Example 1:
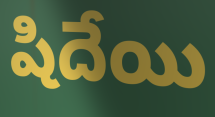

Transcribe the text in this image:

షిదేయి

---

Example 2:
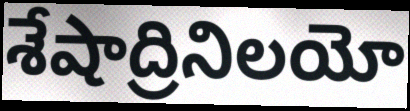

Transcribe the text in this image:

శేషాద్రినిలయో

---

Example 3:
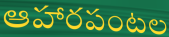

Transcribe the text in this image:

ఆహారపంటల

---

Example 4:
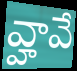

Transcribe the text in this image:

వ్హావే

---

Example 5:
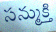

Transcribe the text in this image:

సన్ముక్తి